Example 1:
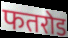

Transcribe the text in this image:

फतरोड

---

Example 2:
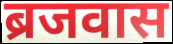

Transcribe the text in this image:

ब्रजवास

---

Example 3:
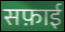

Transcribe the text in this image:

सफ़ाई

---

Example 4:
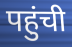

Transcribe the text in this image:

पहुंची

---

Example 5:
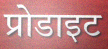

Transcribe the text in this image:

प्रोडाइट